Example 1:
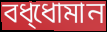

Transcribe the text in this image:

বধ্ধোমান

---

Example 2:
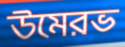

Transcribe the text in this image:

উমেরভ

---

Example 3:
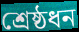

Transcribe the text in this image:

শ্রেষ্ঠধন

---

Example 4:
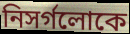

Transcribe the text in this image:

নিসর্গলোকে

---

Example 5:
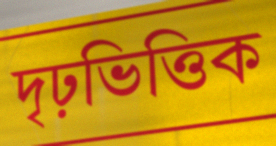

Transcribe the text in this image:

দৃঢ়ভিত্তিক